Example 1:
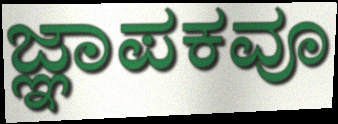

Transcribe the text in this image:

ಜ್ಞಾಪಕವೂ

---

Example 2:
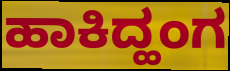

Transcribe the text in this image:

ಹಾಕಿದ್ಹಂಗ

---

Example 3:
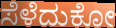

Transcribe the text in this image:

ಸೆಳೆದುಕೋ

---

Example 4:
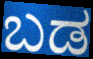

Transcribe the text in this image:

ಬಡ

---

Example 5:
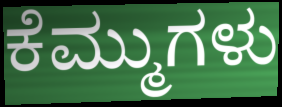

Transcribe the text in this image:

ಕೆಮ್ಮುಗಳು